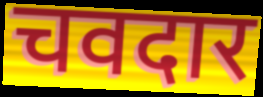
चवदार